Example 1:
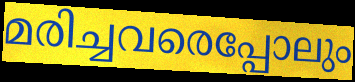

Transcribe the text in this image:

മരിച്ചവരെപ്പോലും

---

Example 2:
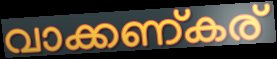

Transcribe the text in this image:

വാക്കണ്കര്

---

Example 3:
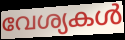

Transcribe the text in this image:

വേശ്യകൾ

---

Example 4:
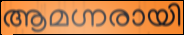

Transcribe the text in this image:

ആമഗ്നരായി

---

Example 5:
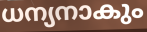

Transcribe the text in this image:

ധന്യനാകും